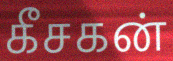
கீசகன்